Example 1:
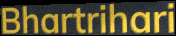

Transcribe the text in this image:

Bhartrihari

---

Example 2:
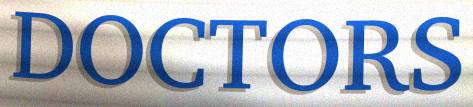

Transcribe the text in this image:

DOCTORS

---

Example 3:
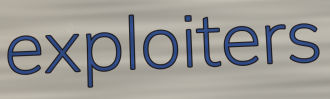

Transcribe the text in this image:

exploiters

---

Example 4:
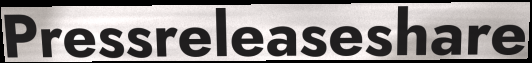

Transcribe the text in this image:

Pressreleaseshare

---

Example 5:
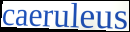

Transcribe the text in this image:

caeruleus